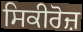
ਸਿਕੀਰੋਜ਼